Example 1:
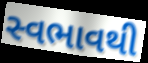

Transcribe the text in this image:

સ્વભાવથી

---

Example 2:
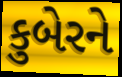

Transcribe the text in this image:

કુબેરને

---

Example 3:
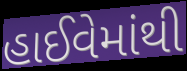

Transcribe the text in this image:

હાઈવેમાંથી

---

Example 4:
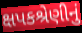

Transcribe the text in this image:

ક્ષપકશ્રેણીનું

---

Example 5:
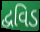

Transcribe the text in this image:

દ્વવિડ